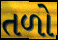
તળો